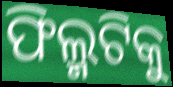
ଫିଲ୍ମଟିକୁ